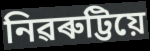
নিৱৰুট্টিয়ে